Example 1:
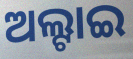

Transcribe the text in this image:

ଅଲ୍ଟାଇ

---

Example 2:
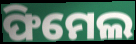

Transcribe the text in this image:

ଫିମେଲ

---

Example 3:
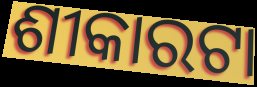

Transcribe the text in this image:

ଶୀକାରଟା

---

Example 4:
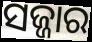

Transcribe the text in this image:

ସଜ୍ଜାର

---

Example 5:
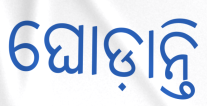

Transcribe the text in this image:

ଘୋଡ଼ାନ୍ତି